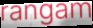
rangam